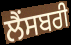
ਲੈਂਸਬਰੀ